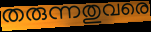
തരുന്നതുവരെ